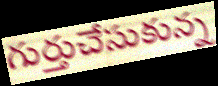
గుర్తుచేసుకున్న